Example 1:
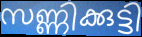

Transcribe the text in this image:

സണ്ണിക്കുട്ടി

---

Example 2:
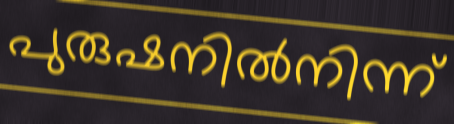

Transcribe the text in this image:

പുരുഷനിൽനിന്ന്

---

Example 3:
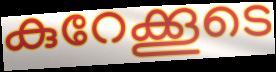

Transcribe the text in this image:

കുറേക്കൂടെ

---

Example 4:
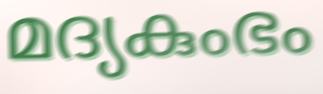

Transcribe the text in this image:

മദ്യകുംഭം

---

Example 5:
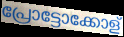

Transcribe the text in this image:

പ്രോട്ടോക്കോള്